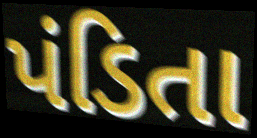
પંડિતા